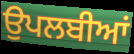
ਉਪਲਬੀਆਂ